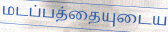
மடப்பத்தையுடைய